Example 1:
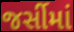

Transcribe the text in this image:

જર્સીમાં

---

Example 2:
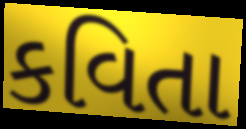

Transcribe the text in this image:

કવિતા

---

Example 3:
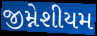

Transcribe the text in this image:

જીમ્નેશીયમ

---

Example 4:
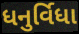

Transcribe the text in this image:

ધનુર્વિધા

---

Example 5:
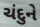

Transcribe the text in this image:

ચંદુને